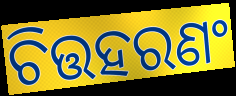
ଚିତ୍ତହରଣଂ